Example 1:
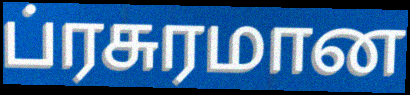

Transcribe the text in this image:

ப்ரசுரமான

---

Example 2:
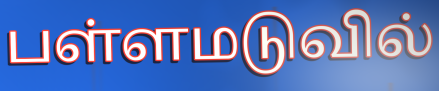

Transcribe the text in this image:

பள்ளமடுவில்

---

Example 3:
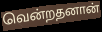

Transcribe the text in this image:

வென்றதனான்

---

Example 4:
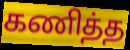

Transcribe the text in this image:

கணித்த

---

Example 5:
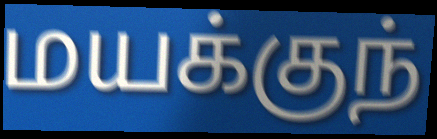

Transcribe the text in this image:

மயக்குந்